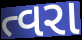
ત્વરા